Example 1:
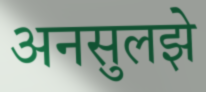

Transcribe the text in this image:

अनसुलझे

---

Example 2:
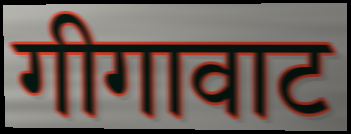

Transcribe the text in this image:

गीगावाट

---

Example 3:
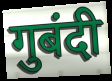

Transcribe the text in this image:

गुबंदी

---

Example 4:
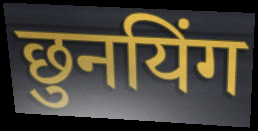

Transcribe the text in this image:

छुनयिंग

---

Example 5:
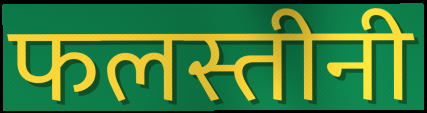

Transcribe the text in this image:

फलस्तीनी